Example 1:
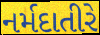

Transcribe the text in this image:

નર્મદાતીરે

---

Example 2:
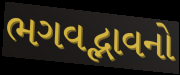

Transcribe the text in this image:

ભગવદ્ભાવનો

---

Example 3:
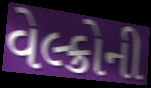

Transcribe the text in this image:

વેલ્ક્રોની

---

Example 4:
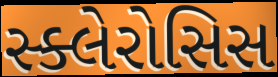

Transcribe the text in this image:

સ્ક્લેરોસિસ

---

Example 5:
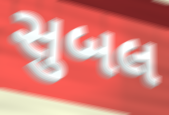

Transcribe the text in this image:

સુબલ